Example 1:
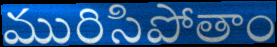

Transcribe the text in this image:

మురిసిపోతాం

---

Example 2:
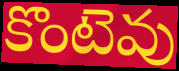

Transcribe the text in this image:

కొంటెవు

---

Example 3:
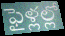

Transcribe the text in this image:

ఫైళ్లల్లో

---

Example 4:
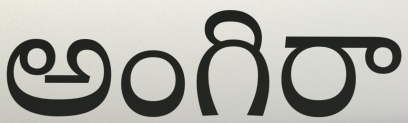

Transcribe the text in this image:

అంగిరా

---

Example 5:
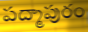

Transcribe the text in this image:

పద్మాపురం